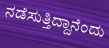
ನಡೆಸುತ್ತಿದ್ದಾನೆಂದು